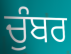
ਚੁੰਬਰ